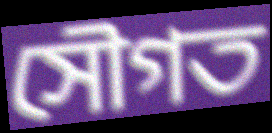
সৌগত